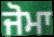
ਜੋਮਾ